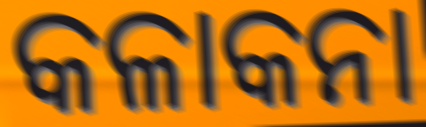
କଳାକନା